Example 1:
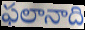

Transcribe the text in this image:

ఫలానాది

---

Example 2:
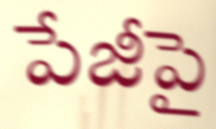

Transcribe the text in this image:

పేజీపై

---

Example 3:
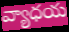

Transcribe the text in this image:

వ్యాధయ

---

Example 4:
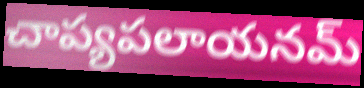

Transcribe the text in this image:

చాప్యపలాయనమ్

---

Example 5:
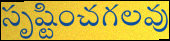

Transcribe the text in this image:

సృష్టించగలవు